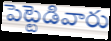
పెట్టెడివారు